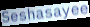
Seshasayee